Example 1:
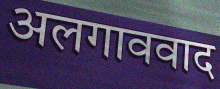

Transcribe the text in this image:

अलगाववाद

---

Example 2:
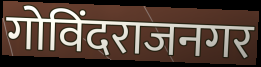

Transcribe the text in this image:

गोविंदराजनगर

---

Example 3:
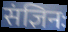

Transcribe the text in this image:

संज्ञिनः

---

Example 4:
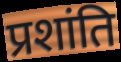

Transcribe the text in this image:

प्रशांति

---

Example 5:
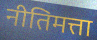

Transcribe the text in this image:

नीतिमत्ता